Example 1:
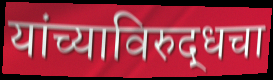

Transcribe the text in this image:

यांच्याविरुद्धचा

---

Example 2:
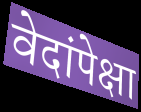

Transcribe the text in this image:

वेदांपेक्षा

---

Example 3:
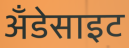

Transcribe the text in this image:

अँडेसाइट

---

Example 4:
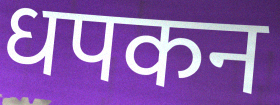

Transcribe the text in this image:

धपकन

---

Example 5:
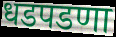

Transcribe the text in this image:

धडपडणा